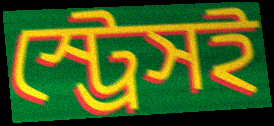
স্ট্রেসই